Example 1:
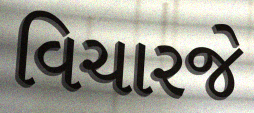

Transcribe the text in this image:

વિચારજે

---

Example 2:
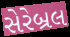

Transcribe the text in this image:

સેરેબ્રલ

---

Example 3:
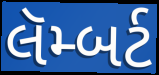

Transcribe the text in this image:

લૅમ્બર્ટ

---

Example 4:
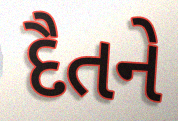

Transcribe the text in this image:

દૈતને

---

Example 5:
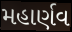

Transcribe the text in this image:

મહાર્ણવ